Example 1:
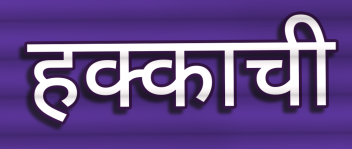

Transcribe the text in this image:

हक्काची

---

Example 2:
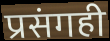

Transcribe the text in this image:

प्रसंगही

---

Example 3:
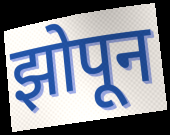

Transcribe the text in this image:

झोपून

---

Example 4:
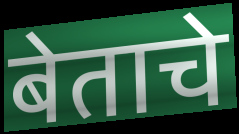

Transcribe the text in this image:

बेताचे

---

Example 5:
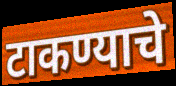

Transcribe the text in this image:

टाकण्याचे